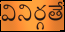
వినిర్గతే